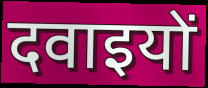
दवाइयों